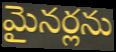
మైనర్లను